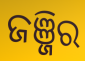
ଜଞ୍ଜିର